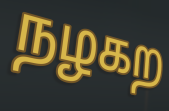
நழகற